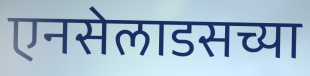
एनसेलाडसच्या